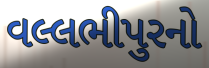
વલ્લભીપુરનો